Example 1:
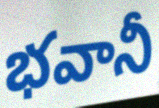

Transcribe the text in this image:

భవానీ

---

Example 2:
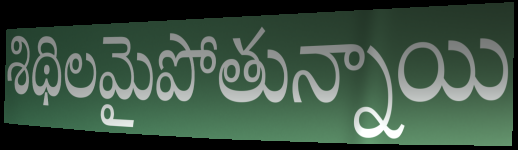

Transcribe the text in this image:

శిథిలమైపోతున్నాయి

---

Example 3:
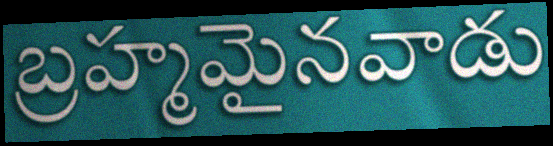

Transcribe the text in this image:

బ్రహ్మమైనవాడు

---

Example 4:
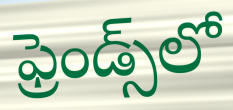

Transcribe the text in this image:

ఫ్రెండ్స్‌లో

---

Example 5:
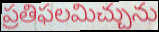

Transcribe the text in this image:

ప్రతిఫలమిచ్చును